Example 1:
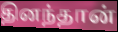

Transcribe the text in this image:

தினந்தான்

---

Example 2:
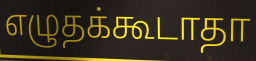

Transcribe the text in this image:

எழுதக்கூடாதா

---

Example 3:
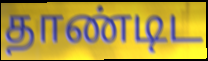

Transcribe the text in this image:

தாண்டிட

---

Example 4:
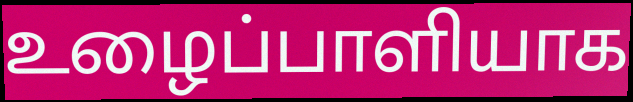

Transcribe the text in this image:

உழைப்பாளியாக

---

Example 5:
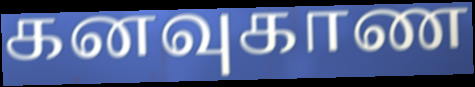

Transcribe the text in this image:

கனவுகாண